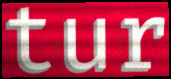
tur